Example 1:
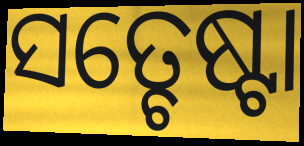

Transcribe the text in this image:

ସତ୍ଚେଷ୍ଟା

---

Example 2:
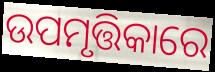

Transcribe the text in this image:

ଉପମୃତ୍ତିକାରେ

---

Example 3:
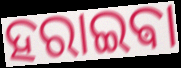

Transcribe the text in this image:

ହରାଇଵା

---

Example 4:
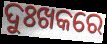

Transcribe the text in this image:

ଦୁଃଖକରେ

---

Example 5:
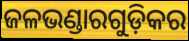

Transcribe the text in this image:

ଜଳଭଣ୍ଡାରଗୁଡ଼ିକର